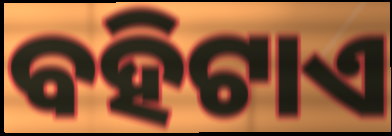
ବହିଟାଏ